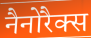
नैनोरैक्स